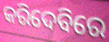
କରିଦେବିରେ